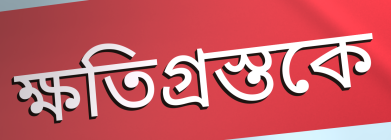
ক্ষতিগ্রস্তকে